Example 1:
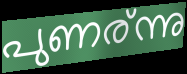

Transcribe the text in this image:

പുണര്ന്നു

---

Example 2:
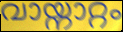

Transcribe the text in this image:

വായ്നാറ്റം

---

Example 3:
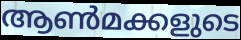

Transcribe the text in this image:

ആൺമക്കളുടെ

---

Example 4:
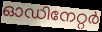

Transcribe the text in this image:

ഓഡിനേറ്റർ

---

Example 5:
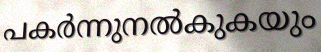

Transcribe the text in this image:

പകർന്നുനൽകുകയും